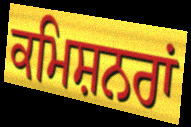
ਕਮਿਸ਼ਨਰਾਂ